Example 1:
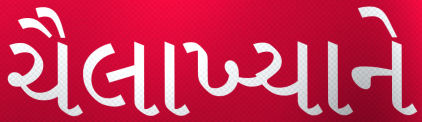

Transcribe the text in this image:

ચૈલાખ્યાને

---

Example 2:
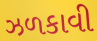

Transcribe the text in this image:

ઝળકાવી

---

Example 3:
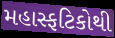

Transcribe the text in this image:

મહાસ્ફટિકોથી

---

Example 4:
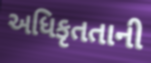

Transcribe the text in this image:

અધિકૃતતાની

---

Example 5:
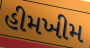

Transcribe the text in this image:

હીમખીમ